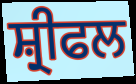
ਸ਼੍ਰੀਫਲ